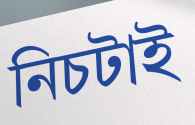
নিচটাই